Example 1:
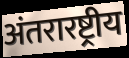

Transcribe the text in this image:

अंतरारष्ट्रीय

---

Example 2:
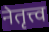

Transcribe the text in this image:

नेतृत्त्व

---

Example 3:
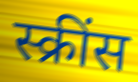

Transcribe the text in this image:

स्क्रींस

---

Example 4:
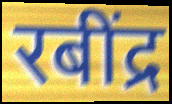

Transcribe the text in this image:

रबींद्र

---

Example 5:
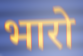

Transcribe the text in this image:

भारो